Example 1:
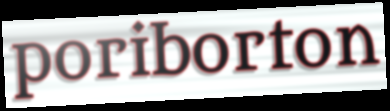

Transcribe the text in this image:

poriborton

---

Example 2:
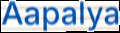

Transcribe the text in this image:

Aapalya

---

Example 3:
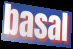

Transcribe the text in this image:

basal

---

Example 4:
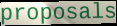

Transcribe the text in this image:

proposals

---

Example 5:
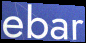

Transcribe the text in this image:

ebar